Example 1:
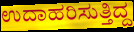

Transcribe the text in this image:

ಉದಾಹರಿಸುತ್ತಿದ್ದ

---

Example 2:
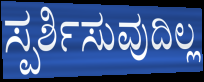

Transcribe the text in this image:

ಸ್ಪರ್ಶಿಸುವುದಿಲ್ಲ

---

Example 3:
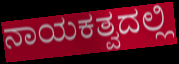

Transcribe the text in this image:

ನಾಯಕತ್ವದಲ್ಲಿ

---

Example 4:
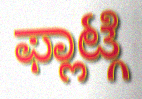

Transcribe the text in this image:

ಫ್ಲಾಟ್ಗೆ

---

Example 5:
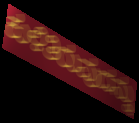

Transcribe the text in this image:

ಕುಳಿತಿರುವುದನ್ನು